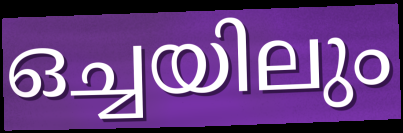
ഒച്ചയിലും